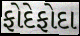
ફોદેફોદા